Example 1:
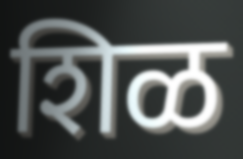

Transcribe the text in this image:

शिळ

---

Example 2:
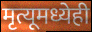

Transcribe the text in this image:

मृत्यूमध्येही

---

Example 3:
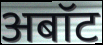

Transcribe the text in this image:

अबॉट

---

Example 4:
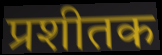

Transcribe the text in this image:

प्रशीतक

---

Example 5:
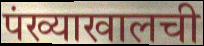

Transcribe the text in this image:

पंख्याखालची